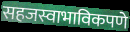
सहजस्वाभाविकपणे